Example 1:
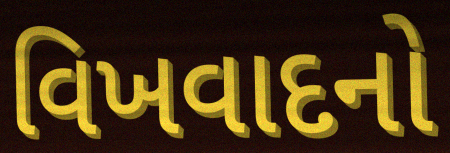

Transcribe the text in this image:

વિખવાદનો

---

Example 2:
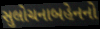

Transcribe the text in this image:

સુલોચનાબહેનનો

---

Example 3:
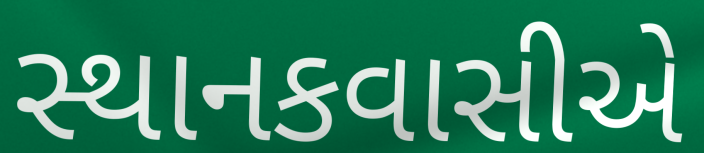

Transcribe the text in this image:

સ્થાનકવાસીએ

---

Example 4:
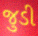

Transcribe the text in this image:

જુડી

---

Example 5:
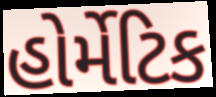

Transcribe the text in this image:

હોર્મેટિક